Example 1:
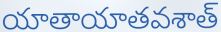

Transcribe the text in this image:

యాతాయాతవశాత్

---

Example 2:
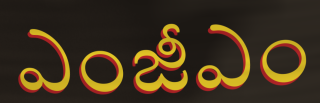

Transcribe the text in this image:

ఎంజీఎం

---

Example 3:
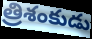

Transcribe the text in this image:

త్రిశంకుడు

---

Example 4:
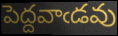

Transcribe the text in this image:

పెద్దవాఁడవు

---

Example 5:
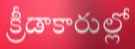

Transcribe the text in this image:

క్రీడాకారుల్లో